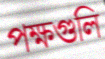
পক্ষগুলি